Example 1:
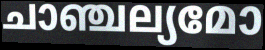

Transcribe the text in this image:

ചാഞ്ചല്യമോ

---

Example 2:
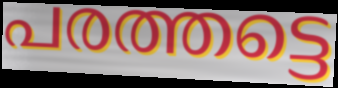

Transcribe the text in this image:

പരത്തട്ടെ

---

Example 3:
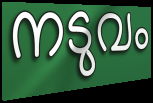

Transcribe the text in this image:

നടുവം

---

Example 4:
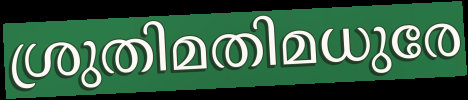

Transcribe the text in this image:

ശ്രുതിമതിമധുരേ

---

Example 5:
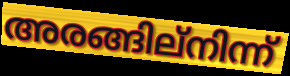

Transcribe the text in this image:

അരങ്ങില്നിന്ന്